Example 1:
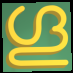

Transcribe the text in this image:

ഗൂ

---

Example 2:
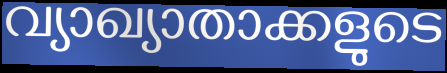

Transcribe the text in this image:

വ്യാഖ്യാതാക്കളുടെ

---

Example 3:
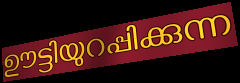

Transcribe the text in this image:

ഊട്ടിയുറപ്പിക്കുന്ന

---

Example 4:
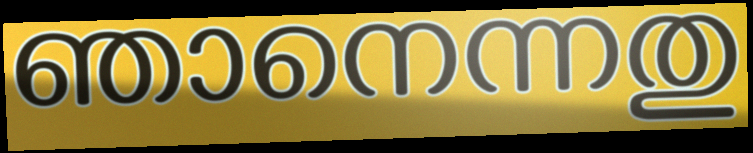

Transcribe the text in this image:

ഞാനെന്നതു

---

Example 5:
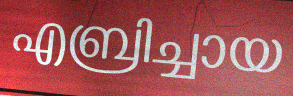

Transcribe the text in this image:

എബ്രിച്ചായ